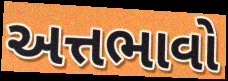
અત્તભાવો